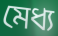
মেধ্য